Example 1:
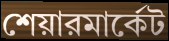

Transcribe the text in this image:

শেয়ারমার্কেট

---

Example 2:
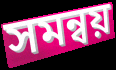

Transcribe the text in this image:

সমন্বয়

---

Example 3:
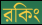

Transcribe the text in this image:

রকিং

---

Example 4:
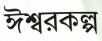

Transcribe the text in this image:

ঈশ্বরকল্প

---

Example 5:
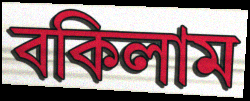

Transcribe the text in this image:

বকিলাম